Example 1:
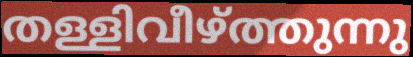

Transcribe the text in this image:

തള്ളിവീഴ്ത്തുന്നു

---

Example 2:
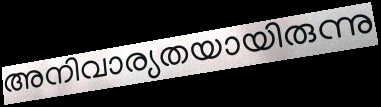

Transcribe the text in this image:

അനിവാര്യതയായിരുന്നു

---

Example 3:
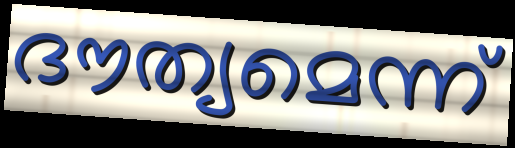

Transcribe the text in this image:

ദൗത്യമെന്ന്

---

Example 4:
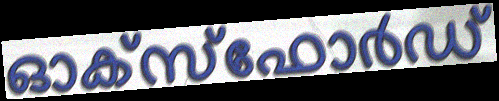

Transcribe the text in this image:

ഓക്സ്ഫോർഡ്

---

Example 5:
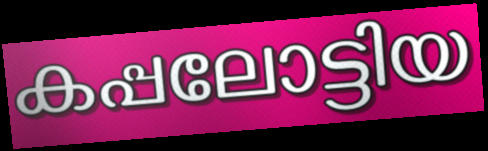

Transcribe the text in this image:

കപ്പലോട്ടിയ